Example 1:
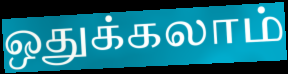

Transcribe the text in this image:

ஒதுக்கலாம்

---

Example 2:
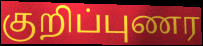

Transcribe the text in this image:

குறிப்புணர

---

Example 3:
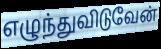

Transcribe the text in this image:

எழுந்துவிடுவேன்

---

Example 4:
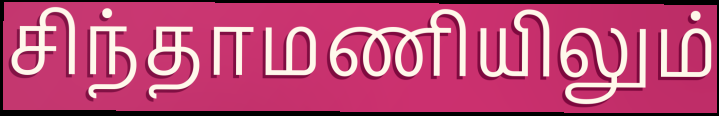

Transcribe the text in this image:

சிந்தாமணியிலும்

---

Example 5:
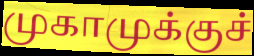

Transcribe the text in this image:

முகாமுக்குச்